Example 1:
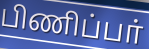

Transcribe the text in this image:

பிணிப்பர்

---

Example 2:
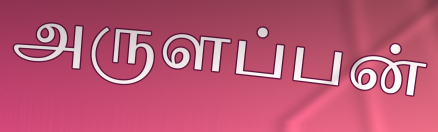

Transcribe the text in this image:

அருளப்பன்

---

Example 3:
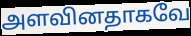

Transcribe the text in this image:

அளவினதாகவே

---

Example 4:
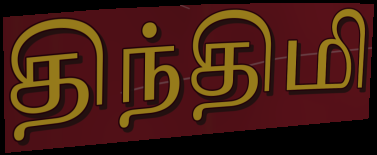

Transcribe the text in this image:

திந்திமி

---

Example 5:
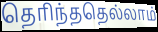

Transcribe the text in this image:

தெரிந்ததெல்லாம்